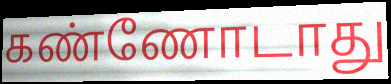
கண்ணோடாது